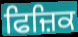
ਫਿਜ਼ਿਕ